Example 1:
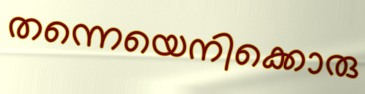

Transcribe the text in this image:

തന്നെയെനിക്കൊരു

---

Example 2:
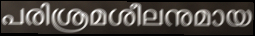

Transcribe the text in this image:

പരിശ്രമശീലനുമായ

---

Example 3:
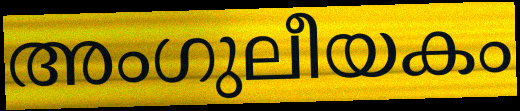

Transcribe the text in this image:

അംഗുലീയകം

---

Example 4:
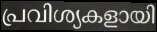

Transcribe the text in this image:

പ്രവിശ്യകളായി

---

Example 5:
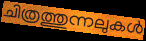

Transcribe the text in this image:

ചിത്രത്തുന്നലുകൾ